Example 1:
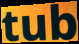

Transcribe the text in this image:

tub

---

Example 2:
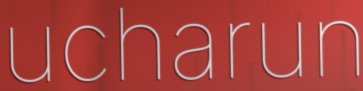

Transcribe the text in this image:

ucharun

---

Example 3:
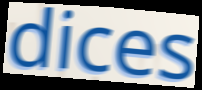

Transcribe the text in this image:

dices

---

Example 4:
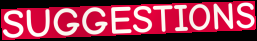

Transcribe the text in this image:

SUGGESTIONS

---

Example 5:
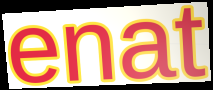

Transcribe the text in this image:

enat